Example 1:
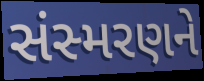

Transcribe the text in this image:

સંસ્મરણને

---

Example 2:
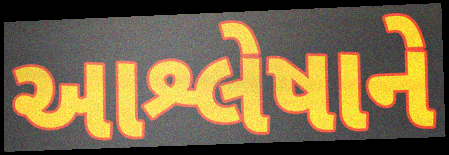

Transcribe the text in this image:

આશ્લેષાને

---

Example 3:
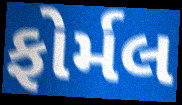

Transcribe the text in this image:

ફોર્મલ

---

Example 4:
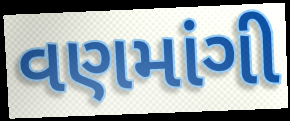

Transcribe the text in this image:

વણમાંગી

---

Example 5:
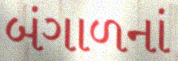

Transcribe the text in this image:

બંગાળનાં